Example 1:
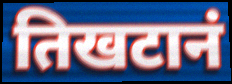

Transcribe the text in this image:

तिखटानं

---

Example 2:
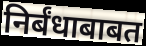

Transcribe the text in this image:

निर्बंधाबाबत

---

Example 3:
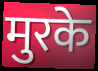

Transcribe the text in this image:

मुरके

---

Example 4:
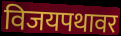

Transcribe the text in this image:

विजयपथावर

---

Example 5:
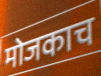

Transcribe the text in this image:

मोजकाच